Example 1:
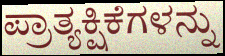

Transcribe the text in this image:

ಪ್ರಾತ್ಯಕ್ಷಿಕೆಗಳನ್ನು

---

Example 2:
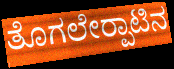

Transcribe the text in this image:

ತೊಗಲೇರ‍್ಪಾಟಿನ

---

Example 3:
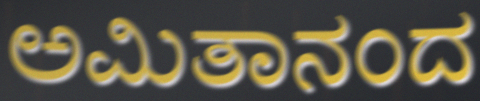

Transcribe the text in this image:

ಅಮಿತಾನಂದ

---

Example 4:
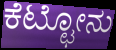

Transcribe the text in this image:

ಕೆಟ್ಟೋನು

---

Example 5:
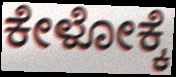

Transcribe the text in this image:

ಕೇಳೋಕ್ಕೆ